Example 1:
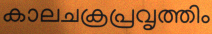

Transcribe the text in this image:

കാലചക്രപ്രവൃത്തിം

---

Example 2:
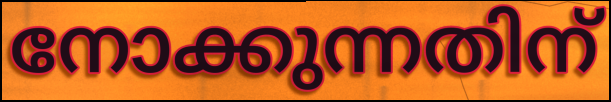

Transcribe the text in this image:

നോക്കുന്നതിന്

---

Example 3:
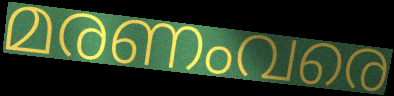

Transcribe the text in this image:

മരണംവരെ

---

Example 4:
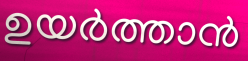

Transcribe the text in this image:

ഉയർത്താൻ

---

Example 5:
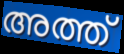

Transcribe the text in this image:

അത്ത്